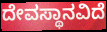
ದೇವಸ್ಥಾನವಿದೆ